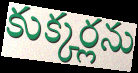
కుక్కర్లను